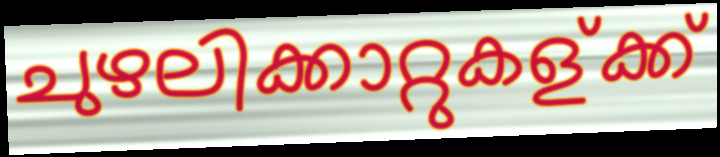
ചുഴലിക്കാറ്റുകള്ക്ക്